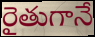
రైతుగానే